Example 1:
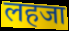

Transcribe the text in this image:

लहजा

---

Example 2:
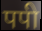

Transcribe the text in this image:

पपी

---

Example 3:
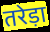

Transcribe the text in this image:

तरेड़ा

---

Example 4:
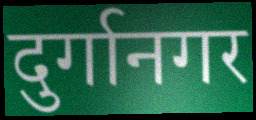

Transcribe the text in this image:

दुर्गानगर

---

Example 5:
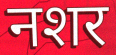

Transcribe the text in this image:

नशर